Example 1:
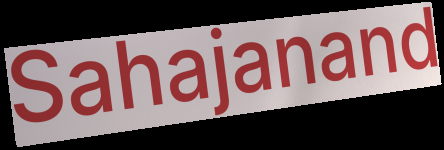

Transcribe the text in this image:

Sahajanand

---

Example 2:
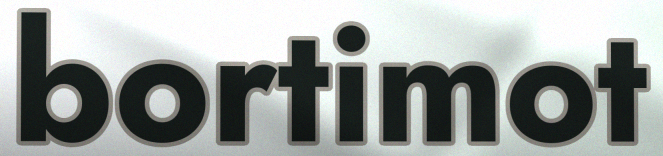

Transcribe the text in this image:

bortimot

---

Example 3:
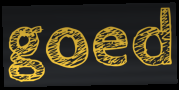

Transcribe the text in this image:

goed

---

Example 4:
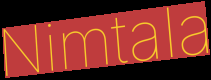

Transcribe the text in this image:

Nimtala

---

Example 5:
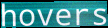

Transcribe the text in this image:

hovers